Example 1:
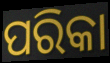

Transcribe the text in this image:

ପରିକା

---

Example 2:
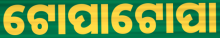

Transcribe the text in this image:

ଟୋପାଟୋପା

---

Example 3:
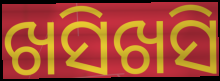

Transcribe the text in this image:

ଖସିଖସି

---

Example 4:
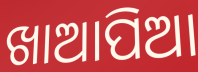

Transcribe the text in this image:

ଖାଆପିଆ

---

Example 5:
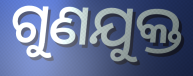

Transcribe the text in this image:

ଗୁଣଯୁକ୍ତ